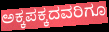
ಅಕ್ಕಪಕ್ಕದವರಿಗೂ